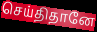
செய்திதானே